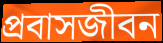
প্রবাসজীবন